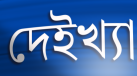
দেইখ্যা